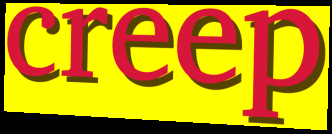
creep